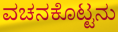
ವಚನಕೊಟ್ಟನು